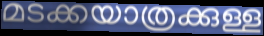
മടക്കയാത്രക്കുള്ള